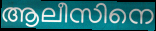
ആലീസിനെ